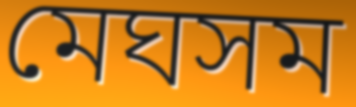
মেঘসম